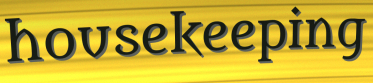
housekeeping